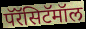
पॅरॅसिटॅमॉल